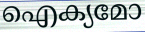
ഐക്യമോ